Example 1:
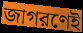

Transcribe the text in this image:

জাগরণেই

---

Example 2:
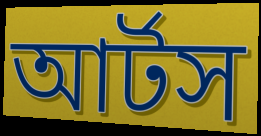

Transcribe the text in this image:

আর্টস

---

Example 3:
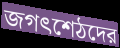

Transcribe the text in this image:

জগৎশেঠদের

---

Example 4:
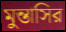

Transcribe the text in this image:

মুন্তাসির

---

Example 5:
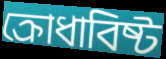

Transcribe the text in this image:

ক্রোধাবিষ্ট